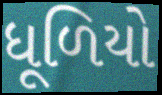
ધૂળિયો